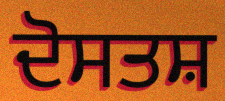
ਦੋਸਤਸ਼